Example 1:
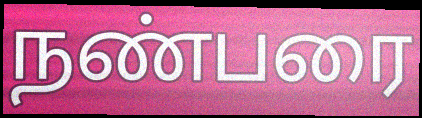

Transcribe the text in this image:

நண்பரை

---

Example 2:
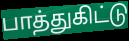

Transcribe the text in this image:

பாத்துகிட்டு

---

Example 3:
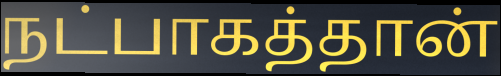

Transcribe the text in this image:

நட்பாகத்தான்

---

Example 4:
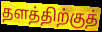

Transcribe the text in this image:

தளத்திற்குத்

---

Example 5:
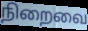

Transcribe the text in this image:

நிறைவை